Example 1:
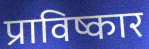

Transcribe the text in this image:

प्राविष्कार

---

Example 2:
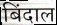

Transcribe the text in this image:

बिंदाल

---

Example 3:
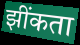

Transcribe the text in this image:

झींकता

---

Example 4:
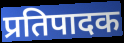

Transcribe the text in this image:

प्रतिपादक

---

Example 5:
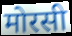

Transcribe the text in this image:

मोरसी